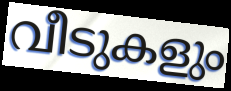
വീടുകളും